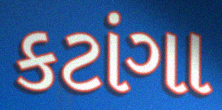
કટાંગા